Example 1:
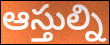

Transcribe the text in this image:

ఆస్తుల్ని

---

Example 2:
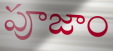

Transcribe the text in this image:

పూజాం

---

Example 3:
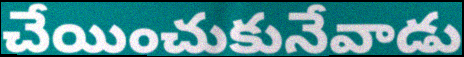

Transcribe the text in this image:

చేయించుకునేవాడు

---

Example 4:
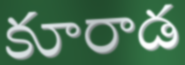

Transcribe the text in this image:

కూరాడ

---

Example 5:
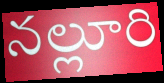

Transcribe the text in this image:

నల్లూరి